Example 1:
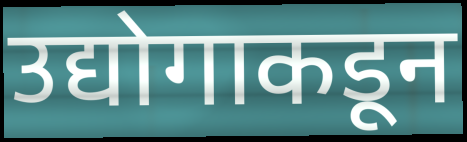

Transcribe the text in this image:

उद्योगाकडून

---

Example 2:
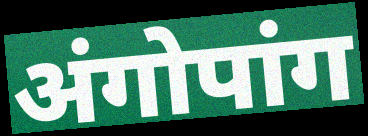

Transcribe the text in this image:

अंगोपांग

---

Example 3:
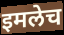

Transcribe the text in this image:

इमलेच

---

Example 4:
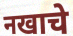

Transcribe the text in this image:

नखाचे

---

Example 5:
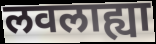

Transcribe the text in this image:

लवलाह्या